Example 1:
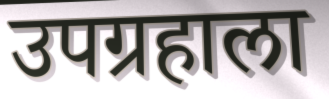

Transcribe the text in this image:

उपग्रहाला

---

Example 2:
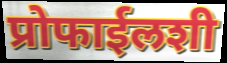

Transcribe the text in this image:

प्रोफाईलशी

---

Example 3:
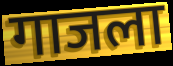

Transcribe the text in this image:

गाजला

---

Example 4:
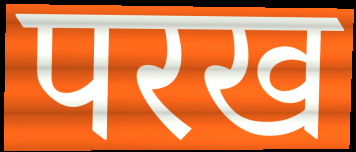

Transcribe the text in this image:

परख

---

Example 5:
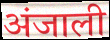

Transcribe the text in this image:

अंजाली